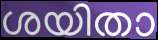
ശയിതാ